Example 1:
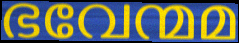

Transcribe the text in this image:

ഭവേന്മമ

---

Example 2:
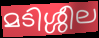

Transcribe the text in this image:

മടിശ്ശീല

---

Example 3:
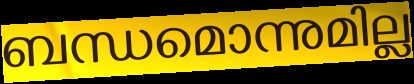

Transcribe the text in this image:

ബന്ധമൊന്നുമില്ല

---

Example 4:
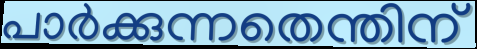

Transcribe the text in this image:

പാർക്കുന്നതെന്തിന്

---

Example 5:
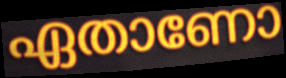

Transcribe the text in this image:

ഏതാണോ